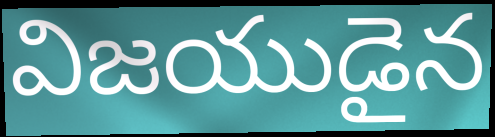
విజయుడైన